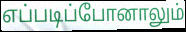
எப்படிப்போனாலும்